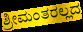
ಶ್ರೀಮಂತರಲ್ಲದ